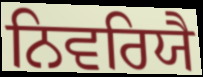
ਨਿਵਰਿਯੈ